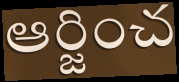
ఆర్జించ